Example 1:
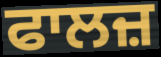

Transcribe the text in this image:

ਫਾਲਜ਼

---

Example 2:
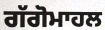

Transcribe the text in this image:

ਗੱਗੋਮਾਹਲ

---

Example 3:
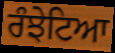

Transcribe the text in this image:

ਰੰਝੇਟਿਆ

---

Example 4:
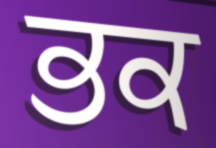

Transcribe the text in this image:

ਭਕ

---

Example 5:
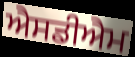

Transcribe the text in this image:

ਐਸਡੀਐਮ